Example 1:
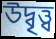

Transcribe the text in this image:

উদ্বৃত্ত্ব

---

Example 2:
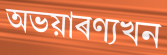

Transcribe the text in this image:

অভয়াৰণ্যখন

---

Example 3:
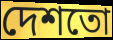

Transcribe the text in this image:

দেশতো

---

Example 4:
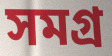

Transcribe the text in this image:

সমগ্ৰ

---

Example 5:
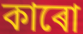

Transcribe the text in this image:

কাৰো